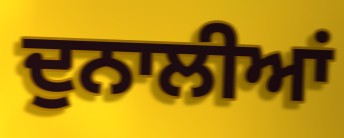
ਦੁਨਾਲੀਆਂ